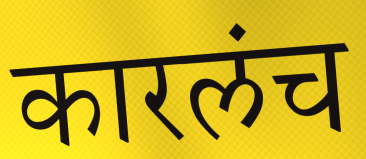
कारलंच